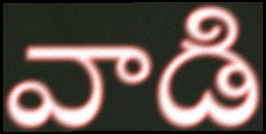
వాడి